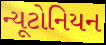
ન્યૂટોનિયન